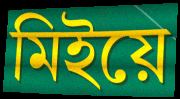
মিইয়ে